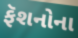
ફૅશનોના